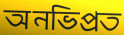
অনভিপ্রত